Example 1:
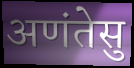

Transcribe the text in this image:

अणंतेसु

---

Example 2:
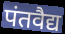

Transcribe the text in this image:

पंतवैद्य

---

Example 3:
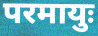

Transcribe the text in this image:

परमायुः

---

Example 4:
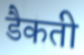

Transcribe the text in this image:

डैकती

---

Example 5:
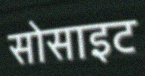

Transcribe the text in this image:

सोसाइट